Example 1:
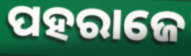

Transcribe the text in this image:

ପହରାଜେ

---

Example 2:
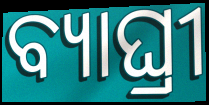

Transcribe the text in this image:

ବ୍ୟାଘ୍ରୀ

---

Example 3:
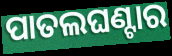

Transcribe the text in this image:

ପାତଲଘଣ୍ଟାର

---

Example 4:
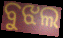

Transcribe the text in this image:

ବୁଝଲ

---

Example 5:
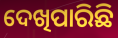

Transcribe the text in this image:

ଦେଖିପାରିଛି